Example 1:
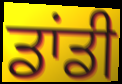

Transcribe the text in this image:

ਡਾਂਡੀ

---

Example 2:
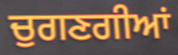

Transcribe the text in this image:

ਚੁਗਣਗੀਆਂ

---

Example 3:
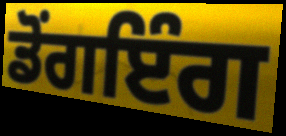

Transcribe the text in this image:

ਡੋਂਗਇੰਗ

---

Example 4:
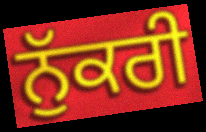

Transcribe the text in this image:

ਨੁੱਕਰੀ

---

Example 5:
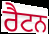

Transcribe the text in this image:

ਰੈਟਨ